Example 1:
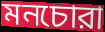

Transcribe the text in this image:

মনচোরা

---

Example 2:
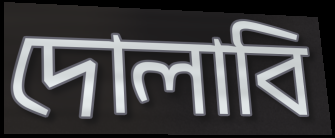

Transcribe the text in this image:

দোলাবি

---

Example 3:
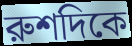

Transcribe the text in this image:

রুশদিকে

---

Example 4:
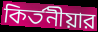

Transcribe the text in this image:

কির্তনীয়ার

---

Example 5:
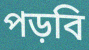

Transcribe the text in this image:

পড়বি